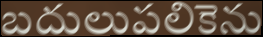
బదులుపలికెను